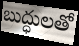
బుద్ధులతో